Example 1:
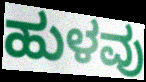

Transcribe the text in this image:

ಹುಳವು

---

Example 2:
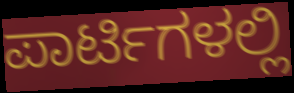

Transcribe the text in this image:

ಪಾರ್ಟಿಗಳಲ್ಲಿ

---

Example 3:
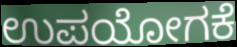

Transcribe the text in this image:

ಉಪಯೋಗಕೆ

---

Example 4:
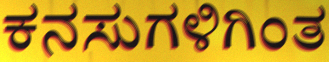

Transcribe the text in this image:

ಕನಸುಗಳಿಗಿಂತ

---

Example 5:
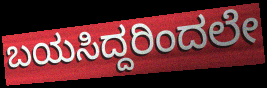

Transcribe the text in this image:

ಬಯಸಿದ್ದರಿಂದಲೇ